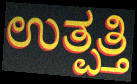
ಉತ್ಪತ್ತಿ